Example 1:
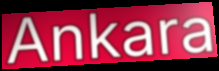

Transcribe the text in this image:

Ankara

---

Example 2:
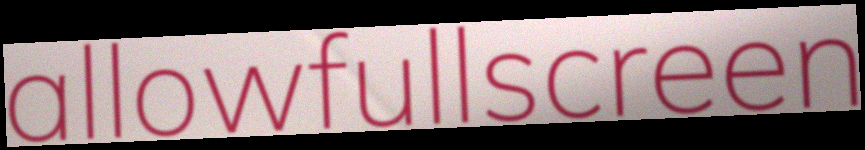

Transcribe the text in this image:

allowfullscreen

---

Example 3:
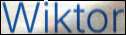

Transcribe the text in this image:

Wiktor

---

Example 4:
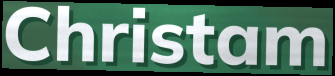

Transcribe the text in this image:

Christam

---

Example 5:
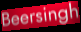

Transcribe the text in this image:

Beersingh